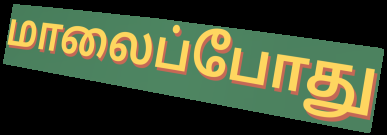
மாலைப்போது